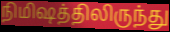
நிமிஷத்திலிருந்து